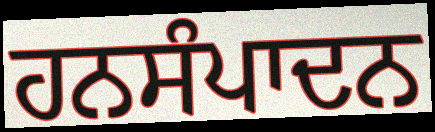
ਹਨਸੰਪਾਦਨ